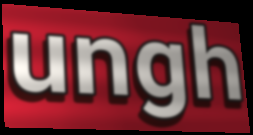
ungh